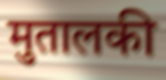
मुतालकी